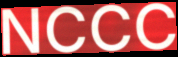
NCCC